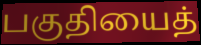
பகுதியைத்